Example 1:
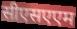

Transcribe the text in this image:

सीएसएएम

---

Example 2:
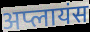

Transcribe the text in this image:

अप्लायंस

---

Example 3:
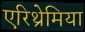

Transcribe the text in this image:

एरिथ्रेमिया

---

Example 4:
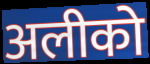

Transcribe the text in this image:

अलीको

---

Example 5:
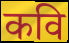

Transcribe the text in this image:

कवि